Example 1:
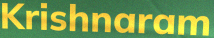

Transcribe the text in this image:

Krishnaram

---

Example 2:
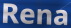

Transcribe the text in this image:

Rena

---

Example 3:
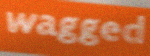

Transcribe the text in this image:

wagged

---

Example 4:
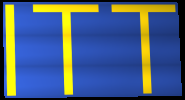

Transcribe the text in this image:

ITT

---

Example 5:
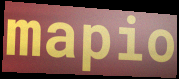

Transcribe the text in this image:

mapio